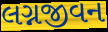
લગ્નજીવન